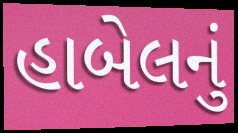
હાબેલનું